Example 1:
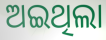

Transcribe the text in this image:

ଅଇଥିଲା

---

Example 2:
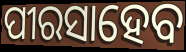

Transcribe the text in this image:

ପୀରସାହେବ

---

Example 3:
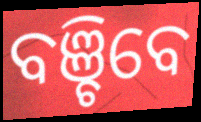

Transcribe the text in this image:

ବଞ୍ଚିବେ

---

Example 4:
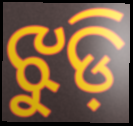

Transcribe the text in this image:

ଝୁଡ଼ି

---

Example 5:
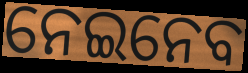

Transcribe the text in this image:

ନେଇନେବ